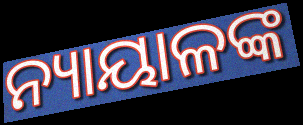
ନ୍ୟାୟାଳଙ୍କ